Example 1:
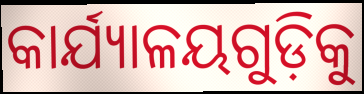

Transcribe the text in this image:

କାର୍ଯ୍ୟାଳୟଗୁଡ଼ିକୁ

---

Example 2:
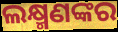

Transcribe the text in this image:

ଲକ୍ଷ୍ମଣଙ୍କର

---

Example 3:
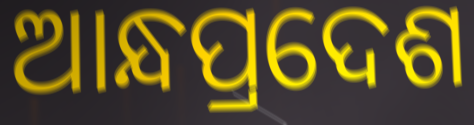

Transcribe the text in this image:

ଆନ୍ଧପ୍ରଦେଶ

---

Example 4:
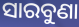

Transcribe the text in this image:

ସାରବୁଣା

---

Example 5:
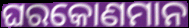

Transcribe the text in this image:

ଘରକୋଣମାନ